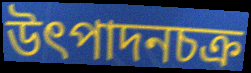
উৎপাদনচক্র